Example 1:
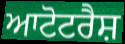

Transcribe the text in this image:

ਆਟੋਟਰੈਸ਼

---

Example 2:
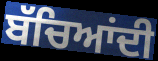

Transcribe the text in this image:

ਬੱਚਿਆਂਦੀ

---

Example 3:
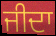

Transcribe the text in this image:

ਜੀਦਾ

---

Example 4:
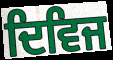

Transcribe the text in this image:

ਦਿਵਿਜ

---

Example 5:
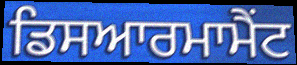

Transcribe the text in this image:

ਡਿਸਆਰਮਾਮੈਂਟ